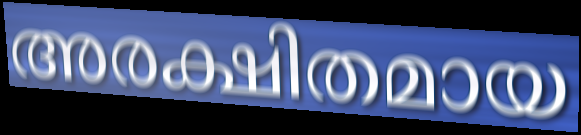
അരക്ഷിതമായ